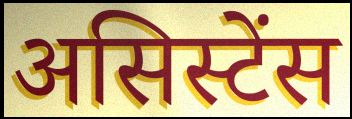
असिस्टेंस